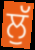
ਲੁੱ